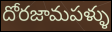
దోరజామపళ్ళు